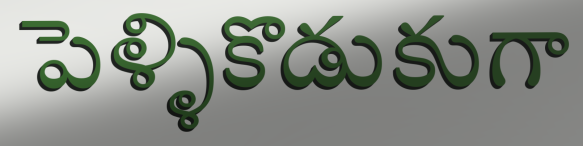
పెళ్ళికొడుకుగా